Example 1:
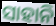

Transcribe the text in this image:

ସାହାନି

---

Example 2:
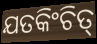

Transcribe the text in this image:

ଯତକିଂଚିତ୍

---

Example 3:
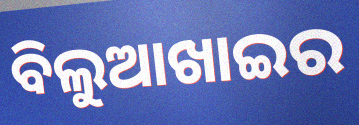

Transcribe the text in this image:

ବିଲୁଆଖାଇର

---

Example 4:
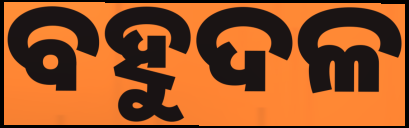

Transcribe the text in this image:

ବହୁଦଳ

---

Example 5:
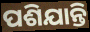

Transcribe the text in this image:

ପଶିଯାନ୍ତି